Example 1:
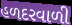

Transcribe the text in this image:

હળદરવાળી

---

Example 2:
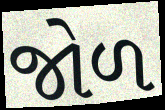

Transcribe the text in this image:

જોળ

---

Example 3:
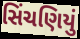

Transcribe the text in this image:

સિંચણિયું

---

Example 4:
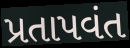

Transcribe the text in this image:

પ્રતાપવંત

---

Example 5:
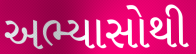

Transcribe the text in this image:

અભ્યાસોથી